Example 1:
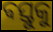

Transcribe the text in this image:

ଵସ୍ତୁକୁ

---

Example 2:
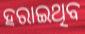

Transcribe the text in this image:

ହରାଇଥିବ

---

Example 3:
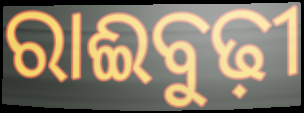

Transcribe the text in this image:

ରାଈବୁଢ଼ୀ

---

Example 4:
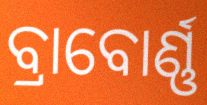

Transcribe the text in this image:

ବ୍ରାବୋର୍ଣ୍ଣ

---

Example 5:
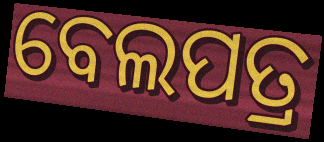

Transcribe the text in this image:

ବେଲପତ୍ର